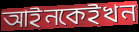
আইনকেইখন